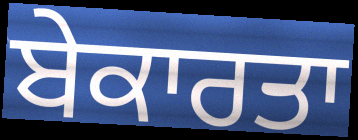
ਬੇਕਾਰਤਾ